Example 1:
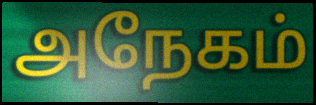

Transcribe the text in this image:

அநேகம்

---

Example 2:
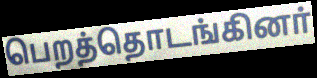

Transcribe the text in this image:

பெறத்தொடங்கினர்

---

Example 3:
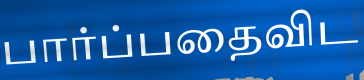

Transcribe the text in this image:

பார்ப்பதைவிட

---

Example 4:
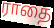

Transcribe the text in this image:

ராதை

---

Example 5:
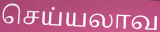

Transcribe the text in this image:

செய்யலாவ